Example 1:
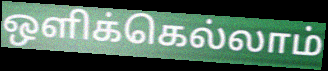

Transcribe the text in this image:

ஒளிக்கெல்லாம்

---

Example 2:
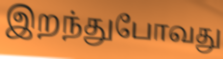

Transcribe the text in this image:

இறந்துபோவது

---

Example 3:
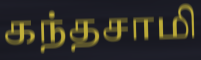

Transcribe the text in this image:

கந்தசாமி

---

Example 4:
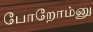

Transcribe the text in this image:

போறோம்னு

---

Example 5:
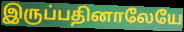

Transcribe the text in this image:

இருப்பதினாலேயே